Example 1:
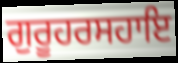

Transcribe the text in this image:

ਗੁਰੂਹਰਸਹਾਇ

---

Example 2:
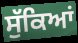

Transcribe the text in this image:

ਸੁੱਕਿਆਂ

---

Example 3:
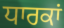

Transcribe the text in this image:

ਧਾਰਕਾਂ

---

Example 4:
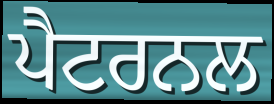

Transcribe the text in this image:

ਪੈਟਰਨਲ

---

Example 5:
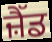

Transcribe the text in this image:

ਜ਼ੈੱਡ